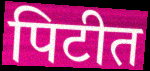
पिटीत